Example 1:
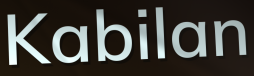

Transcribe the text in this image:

Kabilan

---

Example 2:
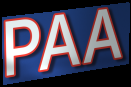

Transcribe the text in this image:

PAA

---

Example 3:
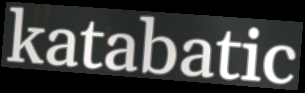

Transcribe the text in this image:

katabatic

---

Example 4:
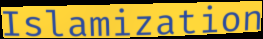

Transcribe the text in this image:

Islamization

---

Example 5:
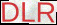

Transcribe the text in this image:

DLR